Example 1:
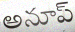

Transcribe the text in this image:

అనూప్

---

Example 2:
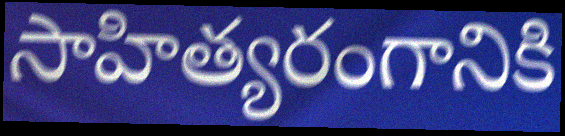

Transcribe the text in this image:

సాహిత్యరంగానికి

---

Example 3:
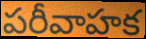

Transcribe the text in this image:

పరీవాహక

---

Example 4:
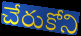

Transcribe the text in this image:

చేరుకోని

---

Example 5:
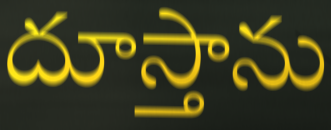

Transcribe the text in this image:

దూస్తాను